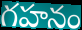
గహనం